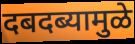
दबदब्यामुळे